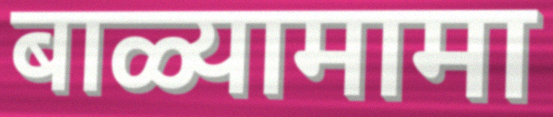
बाळ्यामामा